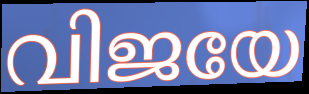
വിജയേ